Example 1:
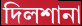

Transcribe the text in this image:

দিলশানা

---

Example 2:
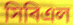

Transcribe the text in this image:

সিবিএল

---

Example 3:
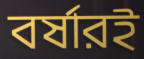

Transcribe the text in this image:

বর্ষারই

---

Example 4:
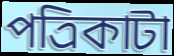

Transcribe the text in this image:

পত্রিকাটা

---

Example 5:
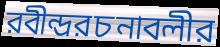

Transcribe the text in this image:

রবীন্দ্ররচনাবলীর